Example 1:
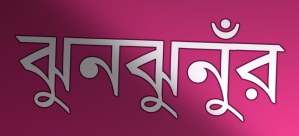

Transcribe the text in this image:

ঝুনঝুনুঁর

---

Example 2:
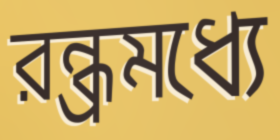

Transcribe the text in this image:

রন্ধ্রমধ্যে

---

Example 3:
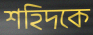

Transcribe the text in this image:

শহিদকে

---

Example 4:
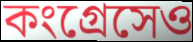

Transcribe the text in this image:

কংগ্রেসেও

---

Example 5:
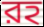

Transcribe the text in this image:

রহ